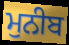
ਮੁਨੀਬ